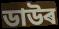
ডাউৰ